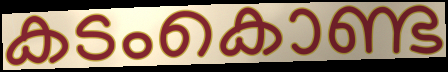
കടംകൊണ്ട